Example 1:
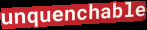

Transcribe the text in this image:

unquenchable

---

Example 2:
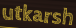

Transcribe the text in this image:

utkarsh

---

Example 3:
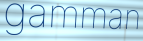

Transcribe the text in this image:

gamman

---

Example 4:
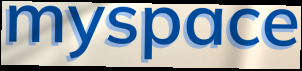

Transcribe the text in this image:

myspace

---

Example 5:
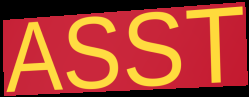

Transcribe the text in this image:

ASST